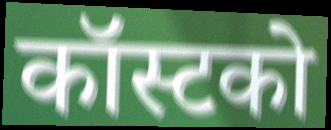
कॉस्टको